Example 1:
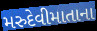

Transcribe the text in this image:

મરુદેવીમાતાના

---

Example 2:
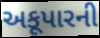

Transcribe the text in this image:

અકૂપારની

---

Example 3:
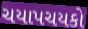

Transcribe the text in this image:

ચયાપચયકો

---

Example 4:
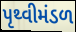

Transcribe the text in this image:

પૃથ્વીમંડળ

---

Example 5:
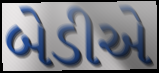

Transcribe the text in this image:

બેડીએ